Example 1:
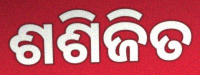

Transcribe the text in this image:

ଶଶିଜିତ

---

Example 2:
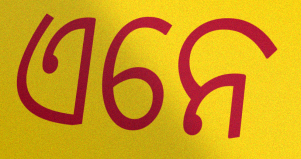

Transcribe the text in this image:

ଏନେ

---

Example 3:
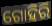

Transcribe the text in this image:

ଗୋହିରି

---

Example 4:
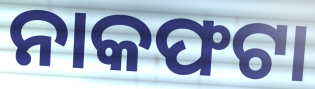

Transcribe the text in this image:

ନାକଫଟା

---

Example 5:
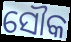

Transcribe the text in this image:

ସୌକ